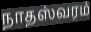
நாதஸ்வரம்